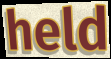
held